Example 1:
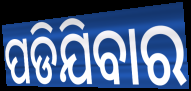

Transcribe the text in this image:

ପଡିଯିବାର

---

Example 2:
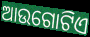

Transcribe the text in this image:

ଆଉଗୋଟିଏ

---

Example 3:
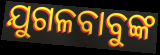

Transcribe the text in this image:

ଯୁଗଳବାବୁଙ୍କ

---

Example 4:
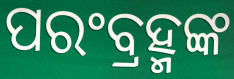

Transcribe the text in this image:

ପରଂବ୍ରହ୍ମଙ୍କ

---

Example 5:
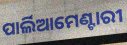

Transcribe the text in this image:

ପାର୍ଲିଆମେଣ୍ଟାରୀ